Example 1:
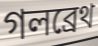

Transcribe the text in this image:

গলব্রেথ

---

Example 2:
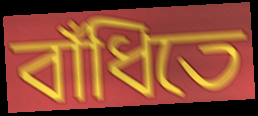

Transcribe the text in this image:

বাঁধিতে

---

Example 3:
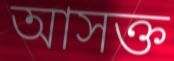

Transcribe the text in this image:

আসক্ত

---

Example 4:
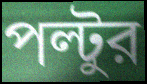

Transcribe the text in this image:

পল্টুর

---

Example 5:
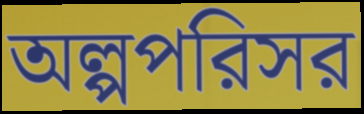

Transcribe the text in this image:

অল্পপরিসর